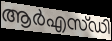
ആർഎസ്ഡി